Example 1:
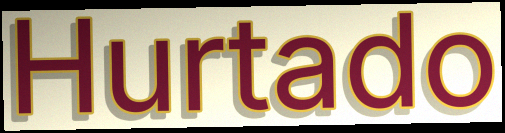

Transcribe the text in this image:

Hurtado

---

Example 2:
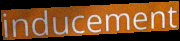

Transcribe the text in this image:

inducement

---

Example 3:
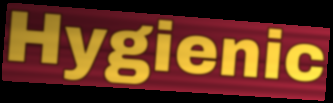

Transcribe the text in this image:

Hygienic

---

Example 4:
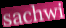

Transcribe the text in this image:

sachwi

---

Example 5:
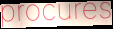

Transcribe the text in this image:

procures